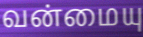
வன்மையு